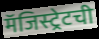
मॅजिस्ट्रेटची